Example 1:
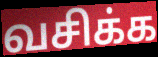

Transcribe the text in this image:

வசிக்க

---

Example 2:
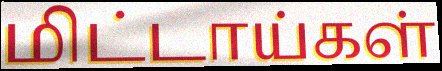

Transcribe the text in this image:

மிட்டாய்கள்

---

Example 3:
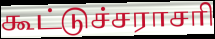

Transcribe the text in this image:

கூட்டுச்சராசரி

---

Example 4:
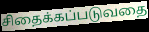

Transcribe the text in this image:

சிதைக்கப்படுவதை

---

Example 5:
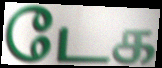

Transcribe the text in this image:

டேக